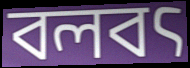
বলবৎ